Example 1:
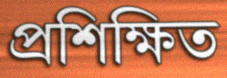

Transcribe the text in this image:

প্ৰশিক্ষিত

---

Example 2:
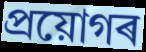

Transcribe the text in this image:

প্ৰয়োগৰ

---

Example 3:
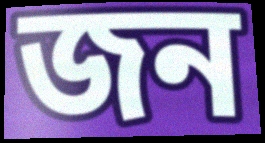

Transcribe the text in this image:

জন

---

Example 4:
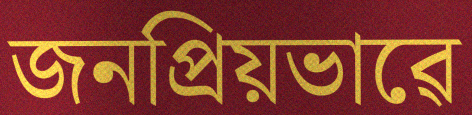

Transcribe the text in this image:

জনপ্ৰিয়ভাৱে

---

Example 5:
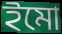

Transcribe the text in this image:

ইমো